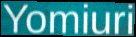
Yomiuri